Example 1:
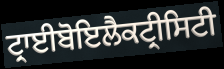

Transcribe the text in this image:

ਟ੍ਰਾਈਬੋਇਲੈਕਟ੍ਰੀਸਿਟੀ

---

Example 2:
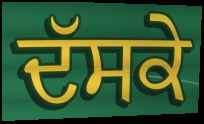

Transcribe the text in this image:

ਦੱਸਕੇ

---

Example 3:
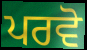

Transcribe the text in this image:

ਪਰਵੋ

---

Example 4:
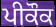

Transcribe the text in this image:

ਪੀਕੌਕ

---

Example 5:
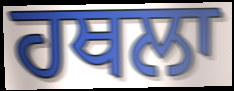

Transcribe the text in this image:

ਹਥਲਾ